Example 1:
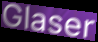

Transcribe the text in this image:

Glaser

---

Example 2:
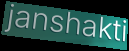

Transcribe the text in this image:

janshakti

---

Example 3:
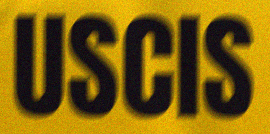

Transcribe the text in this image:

USCIS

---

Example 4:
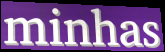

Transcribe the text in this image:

minhas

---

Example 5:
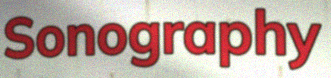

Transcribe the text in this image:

Sonography